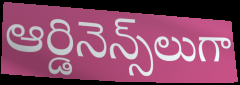
ఆర్డినెన్స్‌లుగా